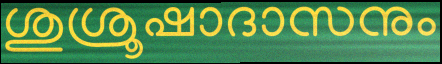
ശുശ്രൂഷാദാസനും